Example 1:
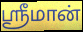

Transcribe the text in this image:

ஸ்ரீமான்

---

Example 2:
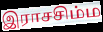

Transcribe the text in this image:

இராசசிம்ம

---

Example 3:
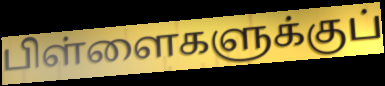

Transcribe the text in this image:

பிள்ளைகளுக்குப்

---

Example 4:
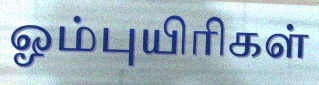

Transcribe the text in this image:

ஓம்புயிரிகள்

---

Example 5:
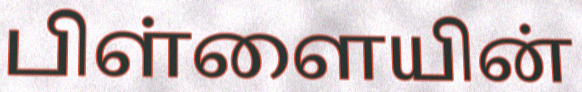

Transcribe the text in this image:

பிள்ளையின்